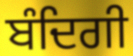
ਬੰਦਿਗੀ